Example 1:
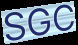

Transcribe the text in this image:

SGC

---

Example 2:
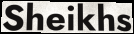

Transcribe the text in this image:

Sheikhs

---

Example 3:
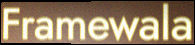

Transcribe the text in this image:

Framewala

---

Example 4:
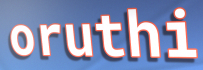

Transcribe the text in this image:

oruthi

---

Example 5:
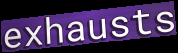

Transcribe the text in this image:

exhausts